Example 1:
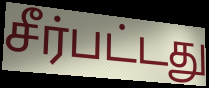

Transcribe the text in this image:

சீர்பட்டது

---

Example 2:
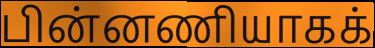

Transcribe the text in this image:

பின்னணியாகக்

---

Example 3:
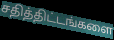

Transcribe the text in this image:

சதித்திட்டங்களை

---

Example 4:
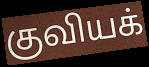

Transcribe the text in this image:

குவியக்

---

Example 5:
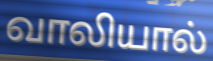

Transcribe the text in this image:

வாலியால்